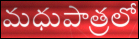
మధుపాత్రలో